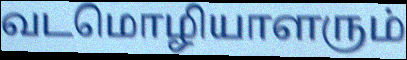
வடமொழியாளரும்